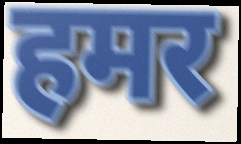
हमर